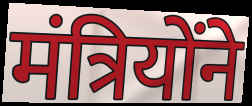
मंत्रियोंने